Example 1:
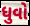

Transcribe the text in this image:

ધુવો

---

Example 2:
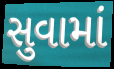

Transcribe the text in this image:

સુવામાં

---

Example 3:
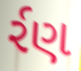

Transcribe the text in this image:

ર્રણ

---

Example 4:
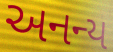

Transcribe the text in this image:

અનન્ય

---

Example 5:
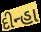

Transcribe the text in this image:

દીન્હા